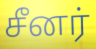
சீனர்